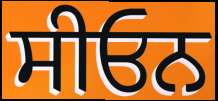
ਸੀਓਨ